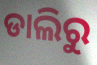
ଡାଲିରୁ